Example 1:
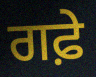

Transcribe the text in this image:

ਗਫ਼ੇ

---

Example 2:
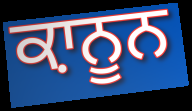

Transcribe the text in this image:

ਕ਼ਾਨੂਨ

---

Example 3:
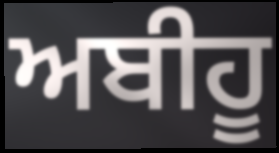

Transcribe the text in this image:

ਅਬੀਹੂ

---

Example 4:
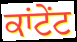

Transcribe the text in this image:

ਕਾਂਟੇਂਟ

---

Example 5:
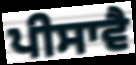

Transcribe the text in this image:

ਪੀਸਾਵੈ